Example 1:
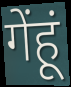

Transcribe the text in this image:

गेंहूं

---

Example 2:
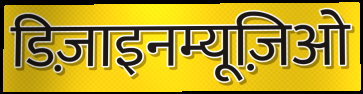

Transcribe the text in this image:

डिज़ाइनम्यूज़िओ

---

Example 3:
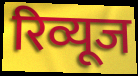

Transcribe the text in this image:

रिव्‍यूज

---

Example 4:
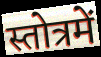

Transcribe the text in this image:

स्तोत्रमें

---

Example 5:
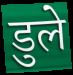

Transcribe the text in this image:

डुले